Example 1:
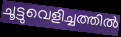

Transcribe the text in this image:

ചൂട്ടുവെളിച്ചത്തിൽ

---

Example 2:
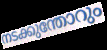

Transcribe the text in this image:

നടക്കുന്തോറും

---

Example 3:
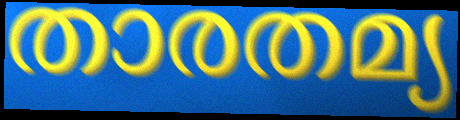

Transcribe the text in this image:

താരതമ്യ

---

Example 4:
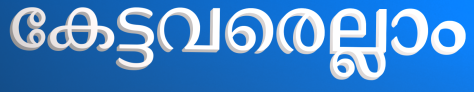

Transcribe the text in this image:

കേട്ടവരെല്ലാം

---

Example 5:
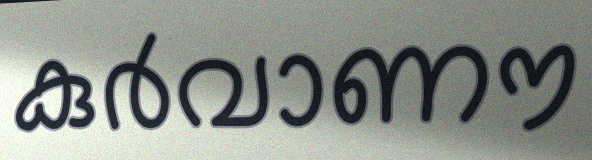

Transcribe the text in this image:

കുർവാണൗ